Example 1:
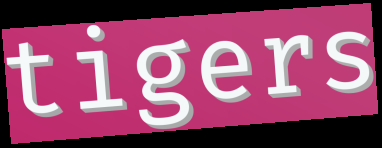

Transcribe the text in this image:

tigers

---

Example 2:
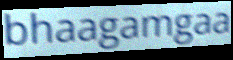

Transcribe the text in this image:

bhaagamgaa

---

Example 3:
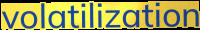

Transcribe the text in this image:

volatilization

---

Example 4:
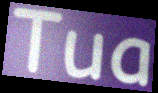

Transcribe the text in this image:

Tua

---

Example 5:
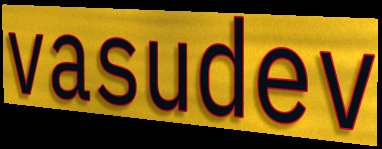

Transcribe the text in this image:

vasudev